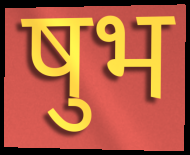
षुभ